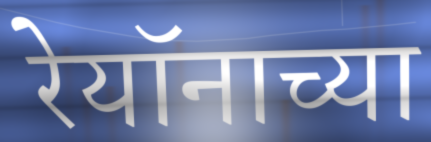
रेयॉनाच्या